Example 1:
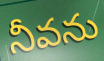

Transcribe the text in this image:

నీవను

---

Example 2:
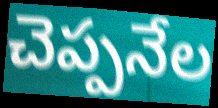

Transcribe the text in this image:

చెప్పనేల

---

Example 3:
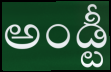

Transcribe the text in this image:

అండ్టీ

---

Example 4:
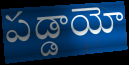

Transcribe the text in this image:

పడ్డాయో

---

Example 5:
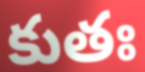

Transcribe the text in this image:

కుతః